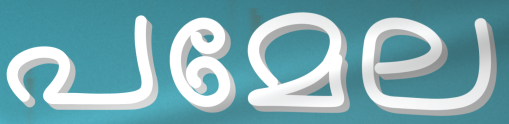
പമേല